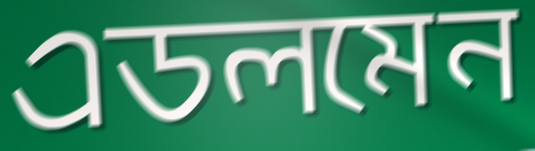
এডলমেন